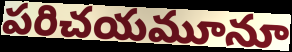
పరిచయమూనూ